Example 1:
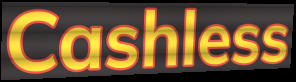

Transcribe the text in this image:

Cashless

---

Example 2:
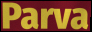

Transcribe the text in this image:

Parva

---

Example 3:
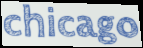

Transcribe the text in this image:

chicago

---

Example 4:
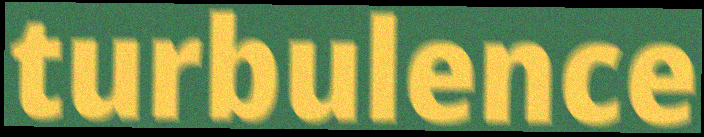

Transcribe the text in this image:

turbulence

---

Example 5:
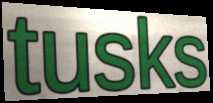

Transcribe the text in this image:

tusks